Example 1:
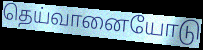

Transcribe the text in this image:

தெய்வானையோடு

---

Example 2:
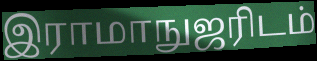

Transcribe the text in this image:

இராமாநுஜரிடம்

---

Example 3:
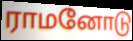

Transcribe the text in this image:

ராமனோடு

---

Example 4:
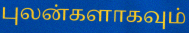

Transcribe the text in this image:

புலன்களாகவும்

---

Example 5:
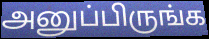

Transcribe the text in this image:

அனுப்பிருங்க